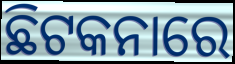
ଛିଟକନାରେ